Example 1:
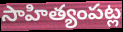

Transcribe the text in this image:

సాహిత్యంపట్ల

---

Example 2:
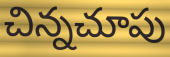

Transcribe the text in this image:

చిన్నచూపు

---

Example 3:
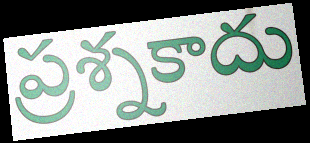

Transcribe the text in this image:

ప్రశ్నకాదు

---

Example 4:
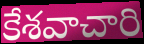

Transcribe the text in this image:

కేశవాచారి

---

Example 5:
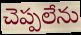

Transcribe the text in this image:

చెప్పలేను